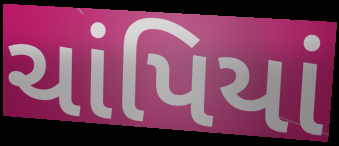
ચાંપિયાં